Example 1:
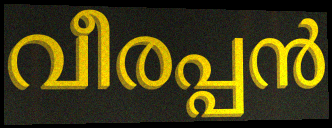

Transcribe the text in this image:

വീരപ്പൻ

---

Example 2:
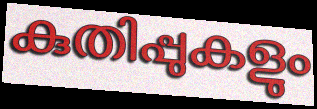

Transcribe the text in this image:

കുതിപ്പുകളും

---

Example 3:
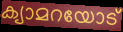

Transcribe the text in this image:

ക്യാമറയോട്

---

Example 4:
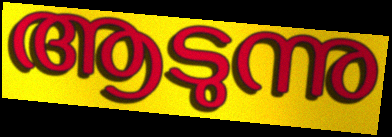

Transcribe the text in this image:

ആടുന്നു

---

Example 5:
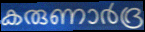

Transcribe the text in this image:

കരുണാർദ്ര